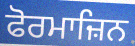
ਫੋਰਮਾਜ਼ਿਨ